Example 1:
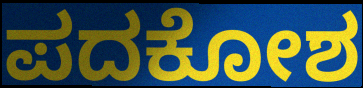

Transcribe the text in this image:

ಪದಕೋಶ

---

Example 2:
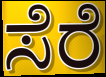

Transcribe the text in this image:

ಸೆರೆ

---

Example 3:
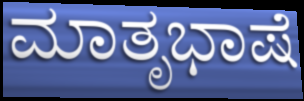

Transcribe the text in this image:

ಮಾತೃಭಾಷೆ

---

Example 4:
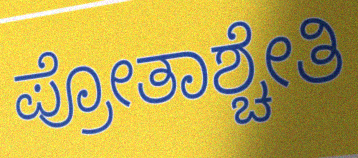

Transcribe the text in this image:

ಪ್ರೋತಾಶ್ಚೇತಿ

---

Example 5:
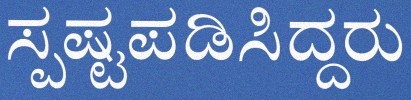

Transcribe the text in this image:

ಸ್ಪಷ್ಟಪಡಿಸಿದ್ದರು